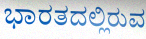
ಭಾರತದಲ್ಲಿರುವ